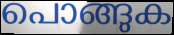
പൊങ്ങുക